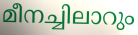
മീനച്ചിലാറും